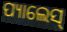
ପ୍ୟାଲେସ୍